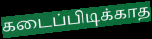
கடைப்பிடிக்காத